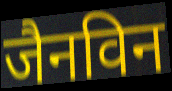
जैनविन